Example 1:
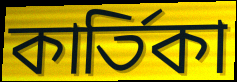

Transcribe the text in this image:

কাৰ্তিকা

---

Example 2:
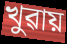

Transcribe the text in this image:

খুৱায়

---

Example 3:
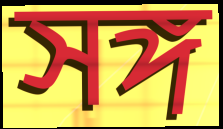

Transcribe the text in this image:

সঙ্গ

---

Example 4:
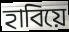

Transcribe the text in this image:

হাবিয়ে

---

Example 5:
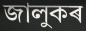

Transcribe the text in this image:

জালুকৰ